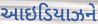
આઇડિયાઝને